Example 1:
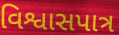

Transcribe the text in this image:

વિશ્વાસપાત્ર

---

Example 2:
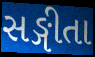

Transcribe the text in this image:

સઙ્ગીતા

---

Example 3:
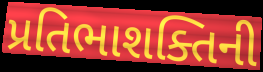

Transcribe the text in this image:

પ્રતિભાશક્તિની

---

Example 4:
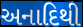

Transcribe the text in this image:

અનાદિથી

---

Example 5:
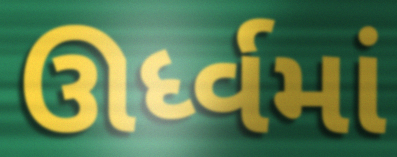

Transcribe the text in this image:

ઊર્ધ્વમાં